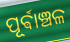
ପୂର୍ଵାଞ୍ଚଳ